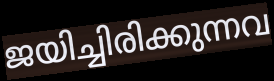
ജയിച്ചിരിക്കുന്നവ